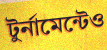
টুর্নামেন্টেও